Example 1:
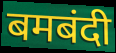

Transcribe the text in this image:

बमबंदी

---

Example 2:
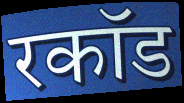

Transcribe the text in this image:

रकॉड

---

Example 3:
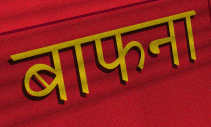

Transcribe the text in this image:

बाफना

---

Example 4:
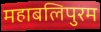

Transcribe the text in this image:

महाबलिपुरम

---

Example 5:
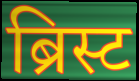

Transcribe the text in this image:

ब्रिस्ट